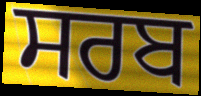
ਸਰਬ